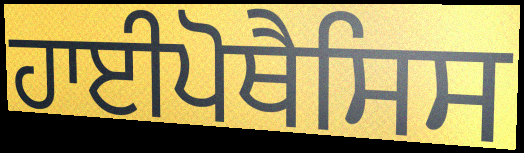
ਹਾਈਪੋਥੈਸਿਸ